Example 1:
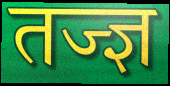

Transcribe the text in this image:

तज्‍ज्ञ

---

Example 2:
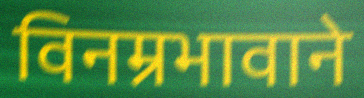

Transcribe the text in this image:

विनम्रभावाने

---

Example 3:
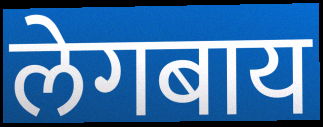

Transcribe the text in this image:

लेगबाय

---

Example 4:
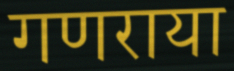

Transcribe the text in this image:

गणराया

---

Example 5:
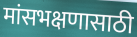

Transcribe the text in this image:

मांसभक्षणासाठी